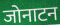
जोनाटन